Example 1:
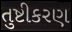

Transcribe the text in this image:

તુષ્ટીકરણ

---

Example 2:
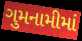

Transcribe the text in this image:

ગુમનામીમાં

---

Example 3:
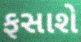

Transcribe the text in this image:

ફસાશે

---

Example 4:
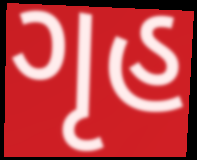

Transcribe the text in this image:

ગૃહ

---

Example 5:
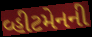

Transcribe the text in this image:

વ્હીટમેનની